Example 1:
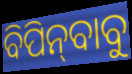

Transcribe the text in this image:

ବିପିନ୍‌ବାବୁ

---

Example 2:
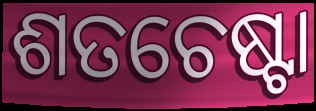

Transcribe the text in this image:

ଶତଚେଷ୍ଟା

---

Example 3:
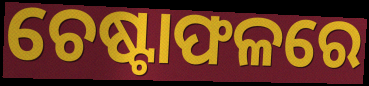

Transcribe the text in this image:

ଚେଷ୍ଟାଫଳରେ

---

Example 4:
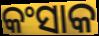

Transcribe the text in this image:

କଂସାକ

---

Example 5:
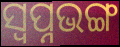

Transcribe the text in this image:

ସ୍ୱପ୍ନଭଙ୍ଗ